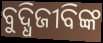
ବୁଦ୍ଧିଜୀବିଙ୍କ